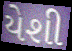
યેશી